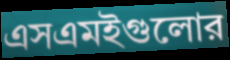
এসএমইগুলোর